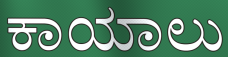
ಕಾಯಾಲು